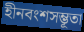
হীনবংশসম্ভূতা